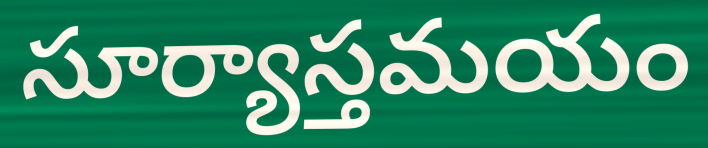
సూర్యాస్తమయం